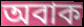
অবাক